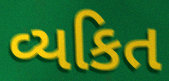
વ્યકિત